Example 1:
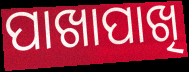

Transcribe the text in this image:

ପାଖାପାଖି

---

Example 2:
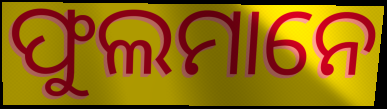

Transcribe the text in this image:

ଫୁଲମାନେ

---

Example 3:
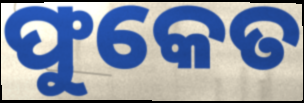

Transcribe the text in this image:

ଫୁକେତ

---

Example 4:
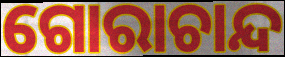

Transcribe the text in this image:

ଗୋରାଚାନ୍ଦ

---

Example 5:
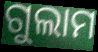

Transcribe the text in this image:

ଗୁଲାମ